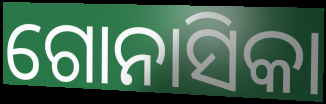
ଗୋନାସିକା